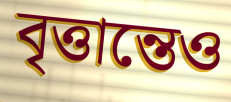
বৃত্তান্তেও